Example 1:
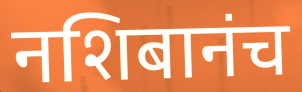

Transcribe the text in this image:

नशिबानंच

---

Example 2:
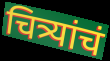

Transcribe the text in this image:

चित्र्यांचं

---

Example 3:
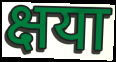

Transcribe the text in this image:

क्षया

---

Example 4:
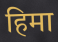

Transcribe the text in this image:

हिमा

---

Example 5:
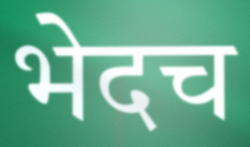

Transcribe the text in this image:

भेदच